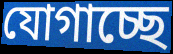
যোগাচ্ছে